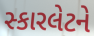
સ્કારલેટને